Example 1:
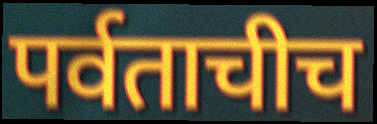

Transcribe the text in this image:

पर्वताचीच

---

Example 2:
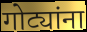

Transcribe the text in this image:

गोट्यांना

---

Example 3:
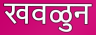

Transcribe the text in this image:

खवळुन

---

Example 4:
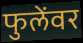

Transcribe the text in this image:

फुलेंवर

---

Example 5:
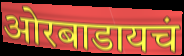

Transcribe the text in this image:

ओरबाडायचं